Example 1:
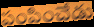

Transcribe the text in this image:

పంపించేడు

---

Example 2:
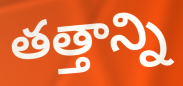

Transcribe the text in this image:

తత్తాన్ని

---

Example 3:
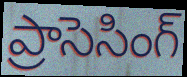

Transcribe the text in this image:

ప్రాసెసింగ్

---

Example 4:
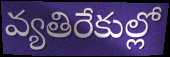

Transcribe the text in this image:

వ్యతిరేకుల్లో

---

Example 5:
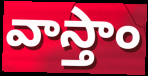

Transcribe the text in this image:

వాస్తాం